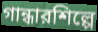
গান্ধারশিল্পে